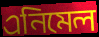
এনিমেল